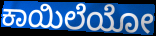
ಕಾಯಿಲೆಯೋ